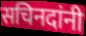
सचिनदांनी